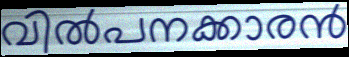
വിൽപനക്കാരൻ